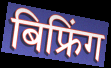
बिफ्रिंग